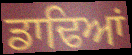
ਡਾਢਿਆਂ